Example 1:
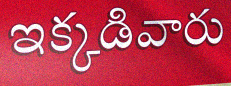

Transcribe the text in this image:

ఇక్కడివారు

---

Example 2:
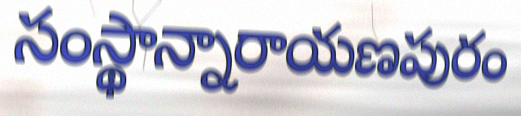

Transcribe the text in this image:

సంస్థాన్నారాయణపురం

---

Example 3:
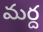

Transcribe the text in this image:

మర్ద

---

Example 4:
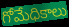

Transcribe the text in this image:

గోమేధికాలు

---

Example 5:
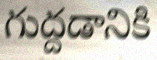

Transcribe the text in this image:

గుద్దడానికి